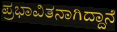
ಪ್ರಭಾವಿತನಾಗಿದ್ದಾನೆ